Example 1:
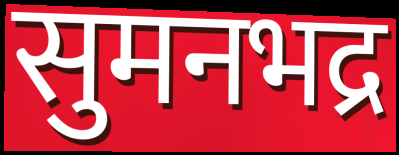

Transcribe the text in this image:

सुमनभद्र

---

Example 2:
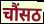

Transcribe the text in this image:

चौंसठ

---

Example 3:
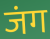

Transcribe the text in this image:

जंग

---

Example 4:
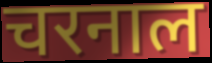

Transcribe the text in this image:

चरनाल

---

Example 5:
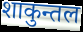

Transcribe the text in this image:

शाकुन्तल